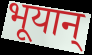
भूयान्